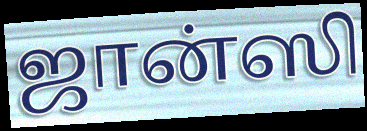
ஜான்ஸி